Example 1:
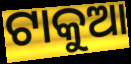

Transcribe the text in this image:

ଟାକୁଆ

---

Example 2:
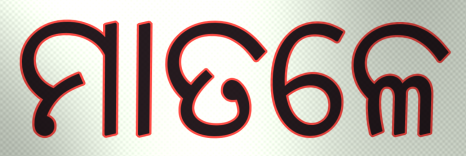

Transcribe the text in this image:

ମାତଳେ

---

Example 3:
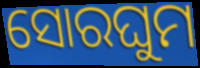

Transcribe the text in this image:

ସୋରଘୁମ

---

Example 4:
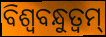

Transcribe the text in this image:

ବିଶ୍ଵବନ୍ଧୁତ୍ଵମ୍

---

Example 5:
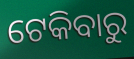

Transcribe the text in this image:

ଟେକିବାରୁ